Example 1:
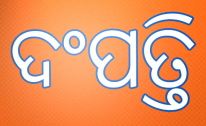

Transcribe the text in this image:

ଦଂପତ୍ତି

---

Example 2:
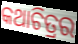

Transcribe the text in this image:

କଥାଚିତ୍ରର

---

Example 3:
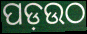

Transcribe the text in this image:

ପଡ଼ଉଠ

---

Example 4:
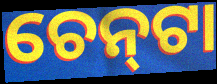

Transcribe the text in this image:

ଚେନ୍‌ଟା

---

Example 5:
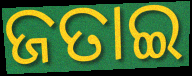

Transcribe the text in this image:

ଜତାଇ